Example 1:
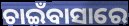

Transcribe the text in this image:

ଚାଇଁବାସାରେ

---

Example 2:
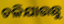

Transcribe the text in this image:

ଚଳିଯାଉଛୁ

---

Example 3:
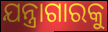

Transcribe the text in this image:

ଯନ୍ତ୍ରାଗାରକୁ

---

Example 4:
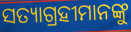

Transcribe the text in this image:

ସତ୍ୟାଗ୍ରହୀମାନଙ୍କୁ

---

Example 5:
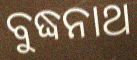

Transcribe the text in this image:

ବୁଦ୍ଧନାଥ